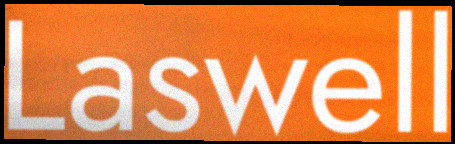
Laswell